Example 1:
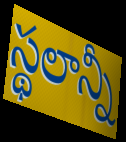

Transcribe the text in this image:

స్థలాన్నీ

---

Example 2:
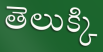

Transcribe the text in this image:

తెలుక్కి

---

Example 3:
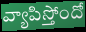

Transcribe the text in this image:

వ్యాపిస్తోందో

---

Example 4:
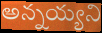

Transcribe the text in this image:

అన్నయ్యని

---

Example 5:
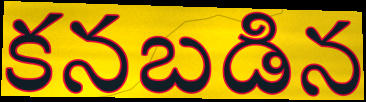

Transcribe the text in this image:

కనబడిన